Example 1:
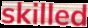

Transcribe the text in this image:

skilled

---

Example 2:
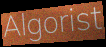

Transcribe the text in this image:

Algorist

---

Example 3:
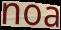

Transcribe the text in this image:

noa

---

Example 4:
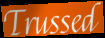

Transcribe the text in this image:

Trussed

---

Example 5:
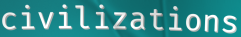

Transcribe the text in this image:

civilizations